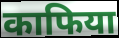
काफिया